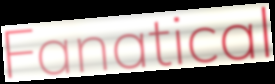
Fanatical